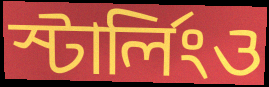
স্টার্লিংও